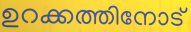
ഉറക്കത്തിനോട്